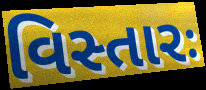
વિસ્તારઃ